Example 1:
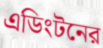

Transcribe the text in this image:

এডিংটনের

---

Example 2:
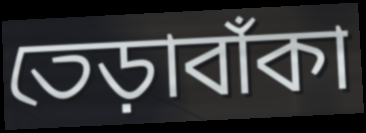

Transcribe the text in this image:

তেড়াবাঁকা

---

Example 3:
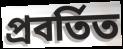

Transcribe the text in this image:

প্রবর্তিত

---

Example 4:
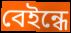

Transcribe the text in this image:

বেইন্ধে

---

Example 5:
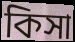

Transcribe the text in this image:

কিসা